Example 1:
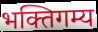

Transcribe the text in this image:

भक्तिगम्य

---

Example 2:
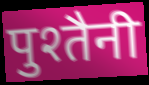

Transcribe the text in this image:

पुश्तैनी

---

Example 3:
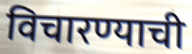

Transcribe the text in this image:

विचारण्याची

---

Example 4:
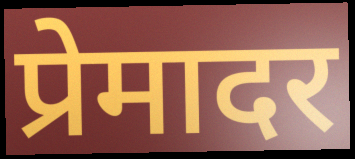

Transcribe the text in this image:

प्रेमादर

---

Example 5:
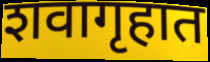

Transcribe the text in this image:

शवागृहात